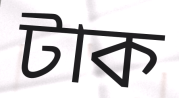
টাক